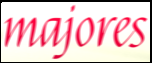
majores